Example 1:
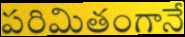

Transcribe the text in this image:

పరిమితంగానే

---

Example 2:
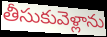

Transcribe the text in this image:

తీసుకువెళ్లాను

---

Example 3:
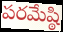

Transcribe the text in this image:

పరమేష్ఠి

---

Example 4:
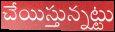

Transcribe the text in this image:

చేయిస్తున్నట్టు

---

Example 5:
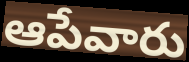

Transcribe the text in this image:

ఆపేవారు